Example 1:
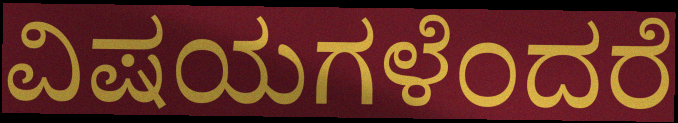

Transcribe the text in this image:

ವಿಷಯಗಳೆಂದರೆ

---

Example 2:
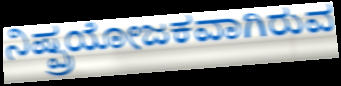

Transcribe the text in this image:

ನಿಷ್ಪ್ರಯೋಜಕವಾಗಿರುವ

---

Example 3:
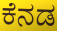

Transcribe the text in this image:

ಕೆನಡ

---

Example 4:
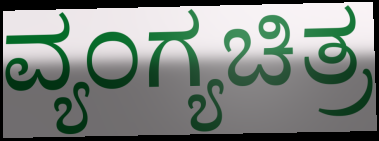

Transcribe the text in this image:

ವ್ಯಂಗ್ಯಚಿತ್ರ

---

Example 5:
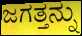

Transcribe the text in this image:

ಜಗತ್ತನ್ನು